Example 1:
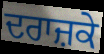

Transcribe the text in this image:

ਦਰਾਜ਼ਕੇ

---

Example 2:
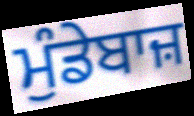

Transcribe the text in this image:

ਮੁੰਡੇਬਾਜ਼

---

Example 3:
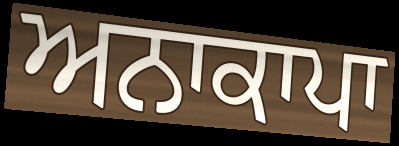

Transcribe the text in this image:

ਅਨਾਕਾਪਾ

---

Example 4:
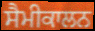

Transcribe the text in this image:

ਸੈਮੀਕਾਲਨ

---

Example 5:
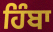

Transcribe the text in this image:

ਹਿੰਬਾ